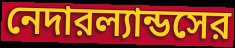
নেদারল্যান্ডসের